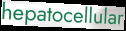
hepatocellular